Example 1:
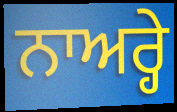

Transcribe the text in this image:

ਨਾਅਰ੍ਹੇ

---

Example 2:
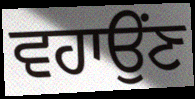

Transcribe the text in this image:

ਵਹਾਉਂਣ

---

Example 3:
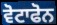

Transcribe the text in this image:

ਵੋਟਾਫੋਨ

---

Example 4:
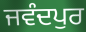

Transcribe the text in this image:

ਜਵੰਦਪੁਰ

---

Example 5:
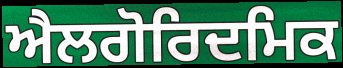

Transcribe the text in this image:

ਐਲਗੋਰਿਦਮਿਕ